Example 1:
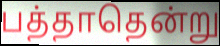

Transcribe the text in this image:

பத்தாதென்று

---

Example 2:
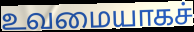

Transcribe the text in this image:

உவமையாகச்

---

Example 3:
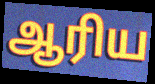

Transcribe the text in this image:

ஆரிய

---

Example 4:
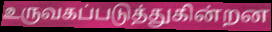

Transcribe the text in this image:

உருவகப்படுத்துகின்றன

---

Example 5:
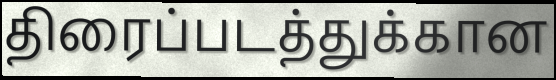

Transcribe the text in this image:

திரைப்படத்துக்கான